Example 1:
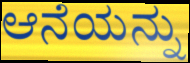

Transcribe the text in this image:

ಆನೆಯನ್ನು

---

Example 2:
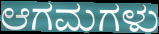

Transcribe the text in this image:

ಆಗಮಗಳು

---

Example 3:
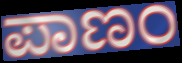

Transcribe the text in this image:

ಪಾಣಂ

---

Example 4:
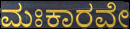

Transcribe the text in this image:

ಮಃಕಾರವೇ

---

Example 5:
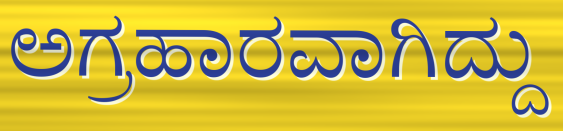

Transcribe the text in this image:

ಅಗ್ರಹಾರವಾಗಿದ್ದು